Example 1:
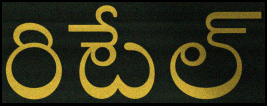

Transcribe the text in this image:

రిటేల్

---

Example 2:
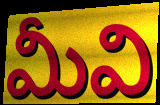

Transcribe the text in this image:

మీవి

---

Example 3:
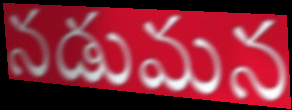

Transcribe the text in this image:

నడుమన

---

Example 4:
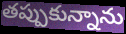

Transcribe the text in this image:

తప్పుకున్నాను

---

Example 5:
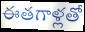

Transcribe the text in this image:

ఈతగాళ్లతో